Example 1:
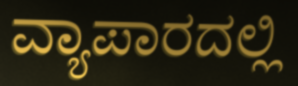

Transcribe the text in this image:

ವ್ಯಾಪಾರದಲ್ಲಿ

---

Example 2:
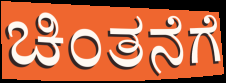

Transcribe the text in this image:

ಚಿಂತನೆಗೆ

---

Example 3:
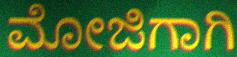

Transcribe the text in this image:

ಮೋಜಿಗಾಗಿ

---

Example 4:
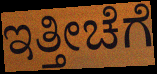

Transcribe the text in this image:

ಇತ್ತೀಚೆಗೆ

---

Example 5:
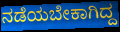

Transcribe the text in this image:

ನಡೆಯಬೇಕಾಗಿದ್ದ